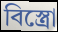
বিস্ত্রো